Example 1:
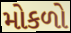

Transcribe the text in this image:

મોકળો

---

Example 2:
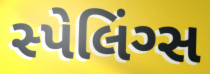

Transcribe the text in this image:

સ્પેલિંગ્સ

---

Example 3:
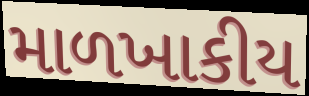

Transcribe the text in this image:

માળખાકીય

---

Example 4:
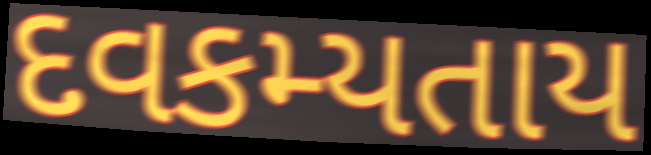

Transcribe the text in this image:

દવકમ્યતાય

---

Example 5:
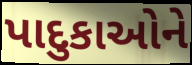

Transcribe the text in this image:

પાદુકાઓને